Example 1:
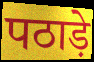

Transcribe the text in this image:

पठाड़े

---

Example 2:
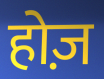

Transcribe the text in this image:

होज़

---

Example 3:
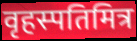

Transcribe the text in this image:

वृहस्पतिमित्र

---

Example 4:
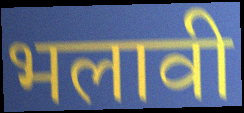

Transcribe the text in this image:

भलावी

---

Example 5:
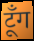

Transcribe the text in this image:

टूँग